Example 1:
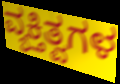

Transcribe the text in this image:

ವ್ಯಕ್ತಿತ್ವಗಳ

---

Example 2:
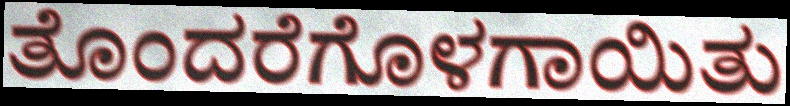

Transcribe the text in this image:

ತೊಂದರೆಗೊಳಗಾಯಿತು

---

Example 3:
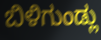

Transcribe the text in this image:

ಬಿಳಿಗುಂಡ್ಲು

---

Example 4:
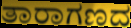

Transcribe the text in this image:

ತಾರಾಗಣದ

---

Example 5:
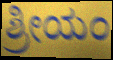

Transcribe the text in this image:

ಶ್ರೀಯಂ